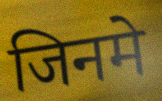
जिनमे